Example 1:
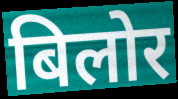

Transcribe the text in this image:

बिलोर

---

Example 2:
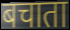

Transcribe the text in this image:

बचाता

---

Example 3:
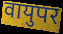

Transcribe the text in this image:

वायुपर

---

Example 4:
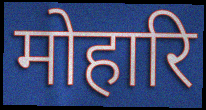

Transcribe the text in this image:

मोहारि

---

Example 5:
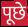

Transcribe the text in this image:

पूछे